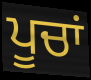
ਪੂਚਾਂ